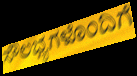
ಸೌಲಭ್ಯಗಳೊಂದಿಗೆ